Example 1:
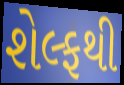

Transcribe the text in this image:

શેલ્ફથી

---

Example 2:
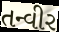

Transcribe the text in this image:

તન્વીર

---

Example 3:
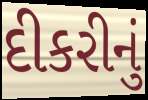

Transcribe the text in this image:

દીકરીનું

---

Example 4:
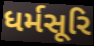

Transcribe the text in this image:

ધર્મસૂરિ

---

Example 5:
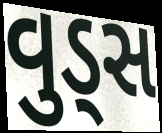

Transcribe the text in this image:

વુડ્સ